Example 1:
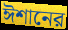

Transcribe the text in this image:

ঈশানের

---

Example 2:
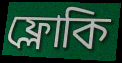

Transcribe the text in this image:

ফ্লোকি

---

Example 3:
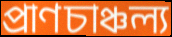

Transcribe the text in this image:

প্রাণচাঞ্চল্য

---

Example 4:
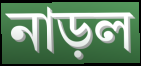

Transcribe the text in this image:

নাড়ল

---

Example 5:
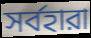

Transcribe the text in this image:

সর্বহারা